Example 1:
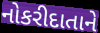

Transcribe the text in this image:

નોકરીદાતાને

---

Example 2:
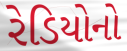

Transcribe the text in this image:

રેડિયોનો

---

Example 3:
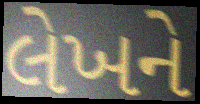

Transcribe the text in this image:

લેખને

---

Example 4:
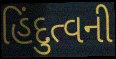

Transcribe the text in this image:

હિંદુત્વની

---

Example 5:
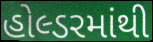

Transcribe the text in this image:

હોલ્ડરમાંથી